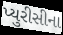
પ્યુરીસીના